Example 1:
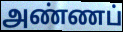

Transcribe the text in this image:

அண்ணப்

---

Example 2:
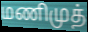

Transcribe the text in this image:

மணிமுத்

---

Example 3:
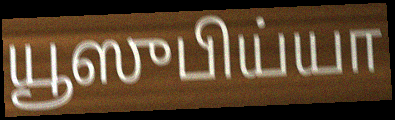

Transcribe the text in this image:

யூஸுபிய்யா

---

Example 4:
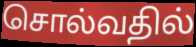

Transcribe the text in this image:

சொல்வதில்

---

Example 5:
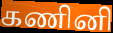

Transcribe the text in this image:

கணினி